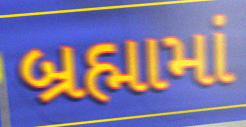
બ્રહ્મામાં